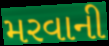
મરવાની